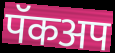
पॅकअप